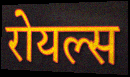
रोयल्स